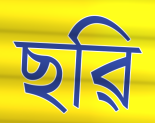
ছৱি